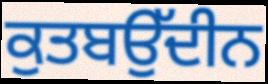
ਕੁਤਬਉੱਦੀਨ